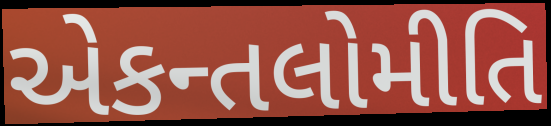
એકન્તલોમીતિ